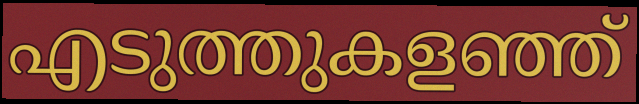
എടുത്തുകളഞ്ഞ്